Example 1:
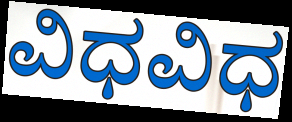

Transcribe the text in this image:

ವಿಧವಿಧ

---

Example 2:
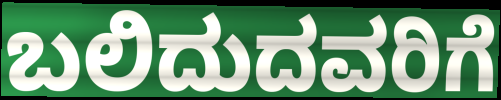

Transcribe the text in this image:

ಬಲಿದುದವರಿಗೆ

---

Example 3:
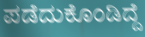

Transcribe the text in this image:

ಪಡೆದುಕೊಂಡಿದ್ದೆ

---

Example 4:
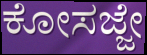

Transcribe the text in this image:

ಕೋಸಜ್ಜೇ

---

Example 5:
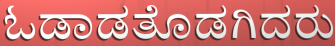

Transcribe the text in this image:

ಓಡಾಡತೊಡಗಿದರು